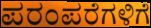
ಪರಂಪರೆಗಳಿಗೆ